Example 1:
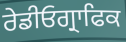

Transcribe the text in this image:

ਰੇਡੀਓਗ੍ਰਾਫਿਕ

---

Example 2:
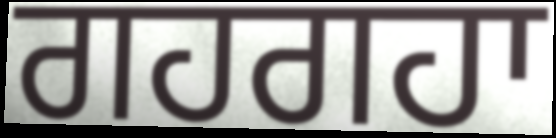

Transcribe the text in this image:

ਗਹਗਹਾ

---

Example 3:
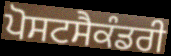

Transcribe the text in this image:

ਪੋਸਟਸੈਕੰਡਰੀ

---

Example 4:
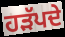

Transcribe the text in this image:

ਹੜੱਪਦੇ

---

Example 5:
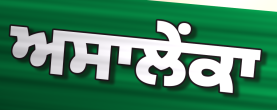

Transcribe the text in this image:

ਅਸਾਲੇਂਕਾ